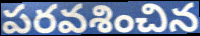
పరవశించిన